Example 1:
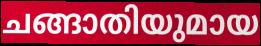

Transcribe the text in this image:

ചങ്ങാതിയുമായ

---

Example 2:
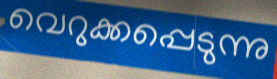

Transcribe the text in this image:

വെറുക്കപ്പെടുന്നു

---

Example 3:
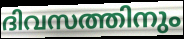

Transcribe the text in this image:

ദിവസത്തിനും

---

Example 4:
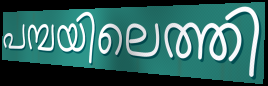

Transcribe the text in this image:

പമ്പയിലെത്തി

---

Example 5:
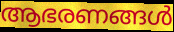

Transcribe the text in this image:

ആഭരണങ്ങൾ